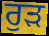
ਰੁੜ